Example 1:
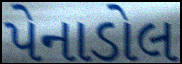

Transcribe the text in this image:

પેનાડોલ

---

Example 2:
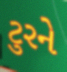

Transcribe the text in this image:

ટુરને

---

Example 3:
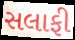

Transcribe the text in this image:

સલાફી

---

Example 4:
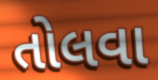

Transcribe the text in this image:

તોલવા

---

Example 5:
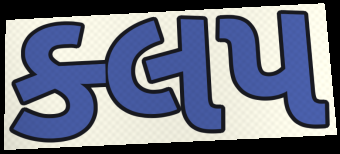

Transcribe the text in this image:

ક્લપ